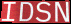
IDSN